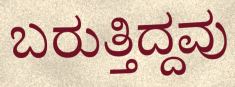
ಬರುತ್ತಿದ್ದವು